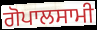
ਗੋਪਾਲਸਾਮੀ